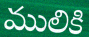
ములికి